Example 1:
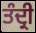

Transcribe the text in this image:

ਤੰਦ੍ਰੀ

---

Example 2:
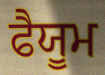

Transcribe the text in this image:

ਫੈਯੂਮ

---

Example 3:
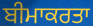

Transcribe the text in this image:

ਬੀਮਾਕਰਤਾ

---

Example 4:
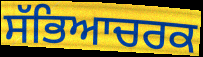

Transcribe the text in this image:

ਸੱਭਿਆਚਰਕ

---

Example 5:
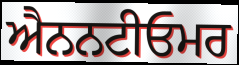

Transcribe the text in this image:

ਐਨਨਟੀਓਮਰ